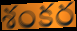
శంకర